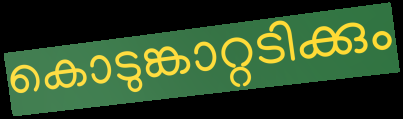
കൊടുങ്കാറ്റടിക്കും